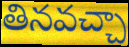
తినవచ్చా